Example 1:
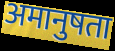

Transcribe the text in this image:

अमानुषता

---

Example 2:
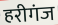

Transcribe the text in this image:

हरीगंज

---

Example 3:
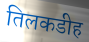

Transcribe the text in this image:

तिलकडीह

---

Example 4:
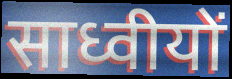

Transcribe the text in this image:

साध्वीयों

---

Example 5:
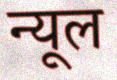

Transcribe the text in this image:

न्यूल